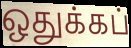
ஒதுக்கப்